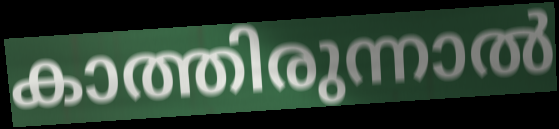
കാത്തിരുന്നാൽ